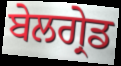
ਬੇਲਗ੍ਰੇਡ